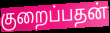
குறைப்பதன்